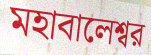
মহাবালেশ্বর